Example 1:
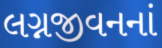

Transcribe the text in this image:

લગ્નજીવનનાં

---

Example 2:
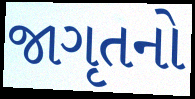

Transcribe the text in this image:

જાગૃતનો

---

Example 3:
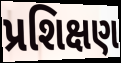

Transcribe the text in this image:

પ્રશિક્ષણ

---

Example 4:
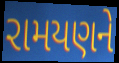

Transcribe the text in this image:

રામયણને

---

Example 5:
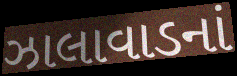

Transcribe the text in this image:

ઝાલાવાડનાં